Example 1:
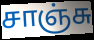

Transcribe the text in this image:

சாஞ்சு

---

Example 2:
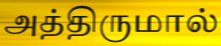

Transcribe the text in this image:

அத்திருமால்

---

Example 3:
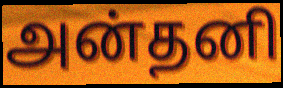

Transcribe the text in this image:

அன்தனி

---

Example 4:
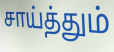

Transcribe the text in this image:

சாய்த்தும்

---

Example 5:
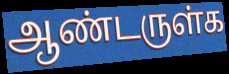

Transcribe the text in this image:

ஆண்டருள்க